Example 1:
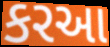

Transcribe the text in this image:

કરઆ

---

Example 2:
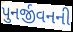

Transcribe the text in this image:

પુનર્જીવનની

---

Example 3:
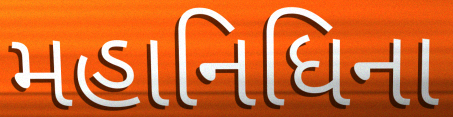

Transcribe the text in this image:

મહાનિધિના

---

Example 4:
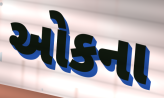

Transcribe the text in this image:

ઓકના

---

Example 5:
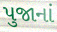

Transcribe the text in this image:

પુજાનાં